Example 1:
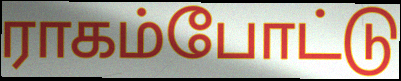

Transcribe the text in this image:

ராகம்போட்டு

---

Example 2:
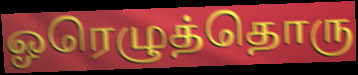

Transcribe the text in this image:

ஓரெழுத்தொரு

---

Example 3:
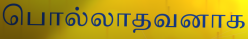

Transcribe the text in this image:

பொல்லாதவனாக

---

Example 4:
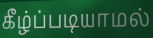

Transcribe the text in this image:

கீழ்ப்படியாமல்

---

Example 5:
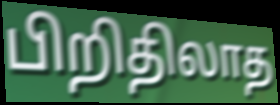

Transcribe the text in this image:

பிறிதிலாத